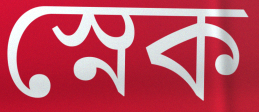
স্নেক